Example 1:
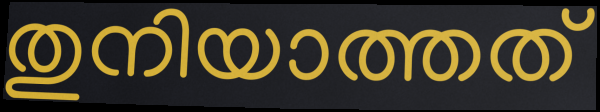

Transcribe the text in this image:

തുനിയാത്തത്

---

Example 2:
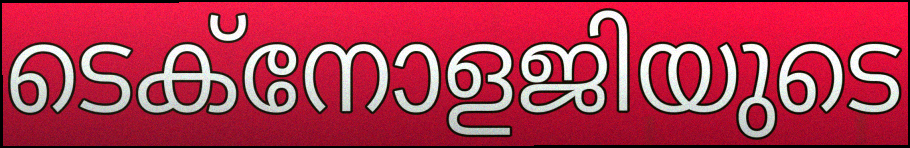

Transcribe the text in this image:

ടെക്നോളജിയുടെ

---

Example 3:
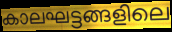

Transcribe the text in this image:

കാലഘട്ടങ്ങളിലെ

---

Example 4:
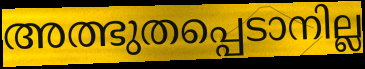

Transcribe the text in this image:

അത്ഭുതപ്പെടാനില്ല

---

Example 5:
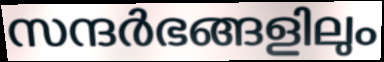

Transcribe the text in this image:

സന്ദർഭങ്ങളിലും